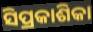
ସିପ୍ରକାଶିକା